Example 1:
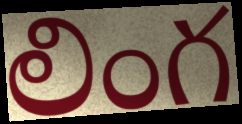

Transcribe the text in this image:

లింగ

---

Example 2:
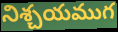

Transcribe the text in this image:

నిశ్చయముగ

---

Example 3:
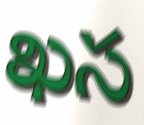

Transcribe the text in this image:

ఖస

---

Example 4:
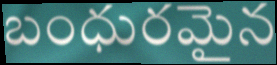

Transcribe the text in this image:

బంధురమైన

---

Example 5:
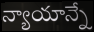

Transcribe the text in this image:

న్యాయాన్నే